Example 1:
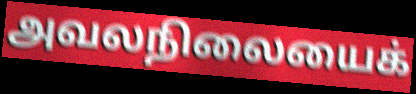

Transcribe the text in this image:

அவலநிலையைக்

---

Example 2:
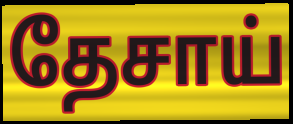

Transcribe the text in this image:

தேசாய்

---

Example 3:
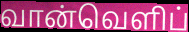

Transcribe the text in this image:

வான்வெளிப்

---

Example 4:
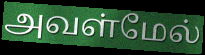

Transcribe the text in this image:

அவள்மேல்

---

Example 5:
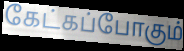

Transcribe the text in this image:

கேட்கப்போகும்